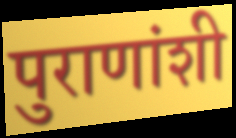
पुराणांशी